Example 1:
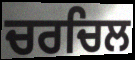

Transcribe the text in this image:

ਚਰਚਿਲ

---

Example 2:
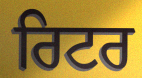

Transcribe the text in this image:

ਰਿਟਰ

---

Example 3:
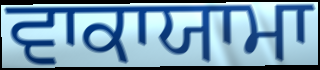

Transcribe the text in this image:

ਵਾਕਾਯਾਮਾ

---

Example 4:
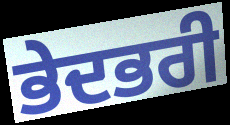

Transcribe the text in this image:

ਭੇਦਭਰੀ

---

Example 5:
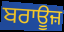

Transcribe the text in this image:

ਬਰਾਊਜ਼